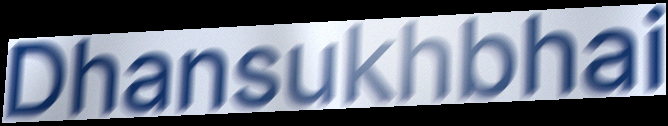
Dhansukhbhai